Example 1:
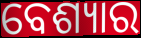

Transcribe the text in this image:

ବେଶ୍ୟାର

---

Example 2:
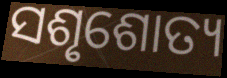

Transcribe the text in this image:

ସଶୃଶୋତ୍ୟ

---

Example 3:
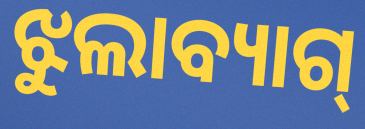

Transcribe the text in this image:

ଝୁଲାବ୍ୟାଗ୍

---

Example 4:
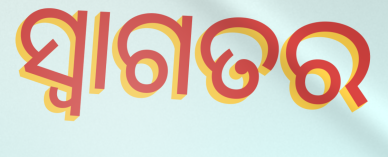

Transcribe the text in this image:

ସ୍ଵାଗତର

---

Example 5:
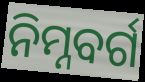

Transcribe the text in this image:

ନିମ୍ନବର୍ଗ